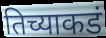
तिच्याकडं